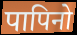
पापिनो